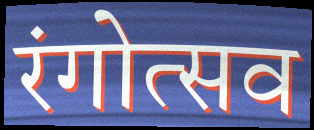
रंगोत्सव